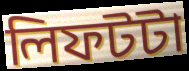
লিফটটা